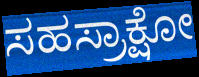
ಸಹಸ್ರಾಕ್ಷೋ